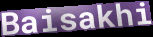
Baisakhi